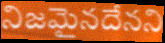
నిజమైనదేనని